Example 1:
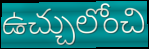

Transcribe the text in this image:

ఉచ్చులోంచి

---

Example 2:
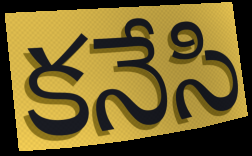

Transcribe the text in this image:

కనేసి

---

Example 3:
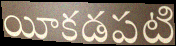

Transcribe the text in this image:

యీకడపటి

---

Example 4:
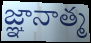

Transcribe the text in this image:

జ్ఞానాత్మ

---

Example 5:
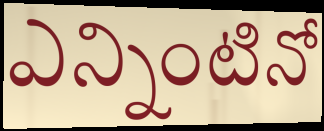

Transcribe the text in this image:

ఎన్నింటినో